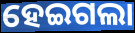
ହେଇଗଲା